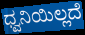
ಧ್ವನಿಯಿಲ್ಲದೆ